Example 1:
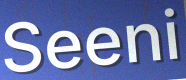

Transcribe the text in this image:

Seeni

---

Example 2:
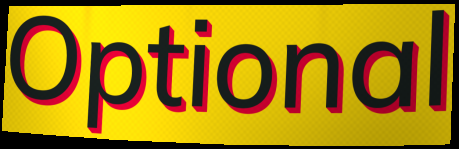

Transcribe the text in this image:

Optional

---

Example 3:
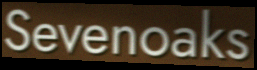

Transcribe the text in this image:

Sevenoaks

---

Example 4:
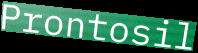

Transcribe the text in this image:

Prontosil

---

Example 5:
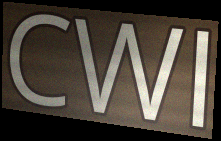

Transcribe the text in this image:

CWI